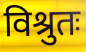
विश्रुतः